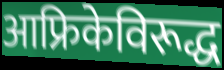
आफ्रिकेविरूद्ध